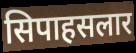
सिपाहसलार